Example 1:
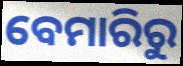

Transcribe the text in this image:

ବେମାରିରୁ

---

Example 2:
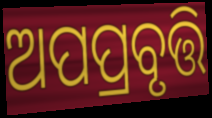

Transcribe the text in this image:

ଅପପ୍ରବୃତ୍ତି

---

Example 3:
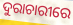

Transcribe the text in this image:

ଦୁରାଚାରୀରେ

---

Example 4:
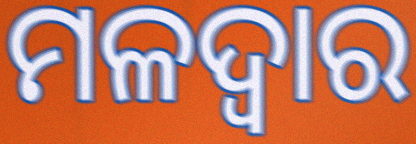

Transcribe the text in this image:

ମଳଦ୍ଵାର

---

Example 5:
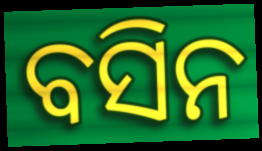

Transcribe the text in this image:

ବସିନ